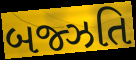
બજ્ઝતિ